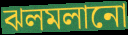
ঝলমলানো